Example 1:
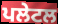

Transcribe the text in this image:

ਪਲੇਟਲ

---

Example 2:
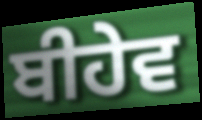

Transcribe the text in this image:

ਬੀਹੇਵ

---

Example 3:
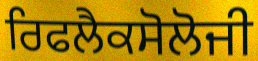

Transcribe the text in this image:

ਰਿਫਲੈਕਸੋਲੋਜੀ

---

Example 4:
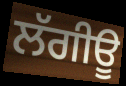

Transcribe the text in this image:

ਲੱਗੀਊ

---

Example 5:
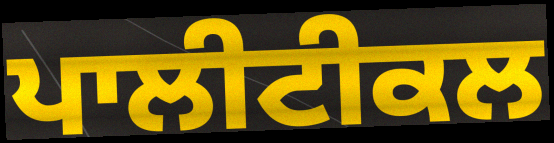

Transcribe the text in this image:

ਪਾਲੀਟੀਕਲ